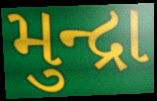
મુન્દ્રા